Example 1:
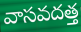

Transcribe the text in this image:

వాసవదత్త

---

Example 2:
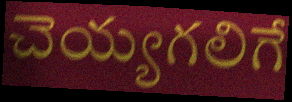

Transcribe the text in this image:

చెయ్యగలిగే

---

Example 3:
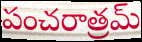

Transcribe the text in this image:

పంచరాత్రమ్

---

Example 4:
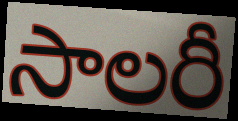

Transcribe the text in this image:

సాలరీ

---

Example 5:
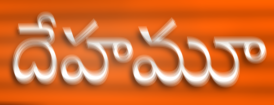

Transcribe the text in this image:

దేహమూ